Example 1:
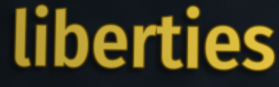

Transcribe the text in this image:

liberties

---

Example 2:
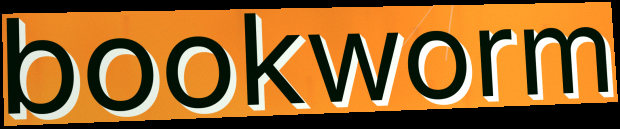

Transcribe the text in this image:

bookworm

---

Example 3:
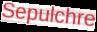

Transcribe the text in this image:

Sepulchre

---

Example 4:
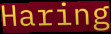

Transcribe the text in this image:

Haring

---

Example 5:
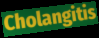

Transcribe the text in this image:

Cholangitis